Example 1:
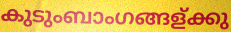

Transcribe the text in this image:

കുടുംബാംഗങ്ങള്ക്കു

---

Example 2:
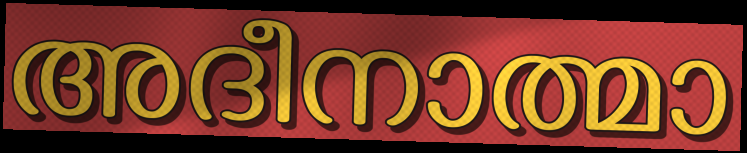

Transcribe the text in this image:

അദീനാത്മാ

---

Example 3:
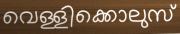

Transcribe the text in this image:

വെള്ളിക്കൊലുസ്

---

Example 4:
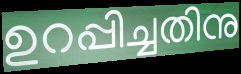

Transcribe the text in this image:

ഉറപ്പിച്ചതിനു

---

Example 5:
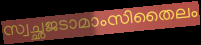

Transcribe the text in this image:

സ്വച്ഛജടാമാംസിതൈലം